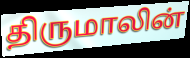
திருமாலின்